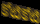
కోటికోటి